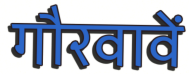
गौरवावें